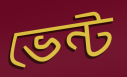
ভেন্ট